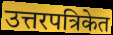
उत्तरपत्रिकेत